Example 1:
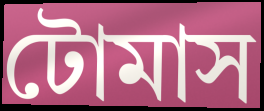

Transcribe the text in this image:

টোমাস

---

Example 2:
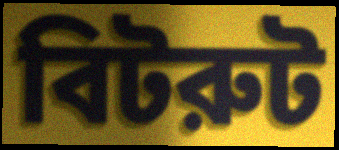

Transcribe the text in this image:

বিটরুট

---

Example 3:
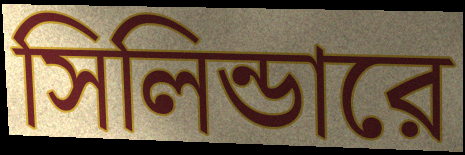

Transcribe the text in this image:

সিলিন্ডারে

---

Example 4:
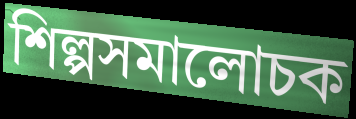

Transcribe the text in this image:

শিল্পসমালোচক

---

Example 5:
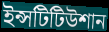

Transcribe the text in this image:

ইন্সটিটিউশান